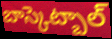
బాస్కెట్బాల్